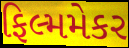
ફિલ્મમેકર